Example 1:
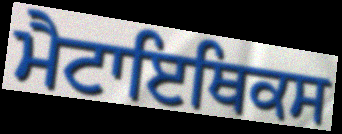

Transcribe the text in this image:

ਮੈਟਾਇਥਿਕਸ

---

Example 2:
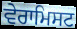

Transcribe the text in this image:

ਵੇਰਾਮਿਸਟ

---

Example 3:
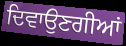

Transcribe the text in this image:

ਦਿਵਾਉਣਗੀਆਂ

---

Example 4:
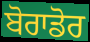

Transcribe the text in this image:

ਬੋਰਾਡੋਰ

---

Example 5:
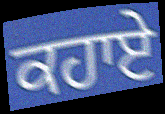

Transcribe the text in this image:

ਕਹਾਏ